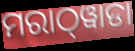
ମରାଠ୍‌ୱାଡା